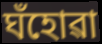
ঘঁহোৱা